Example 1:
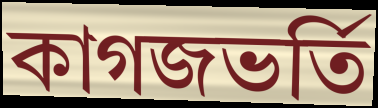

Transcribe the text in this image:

কাগজভর্তি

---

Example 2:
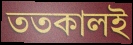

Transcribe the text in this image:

ততকালই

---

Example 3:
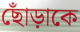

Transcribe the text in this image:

ছোঁড়াকে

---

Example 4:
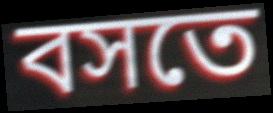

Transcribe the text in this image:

বসতে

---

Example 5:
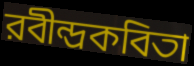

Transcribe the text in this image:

রবীন্দ্রকবিতা